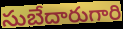
సుబేదారుగారి